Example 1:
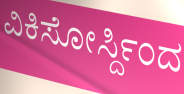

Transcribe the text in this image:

ವಿಕಿಸೋರ್ಸ್ದಿಂದ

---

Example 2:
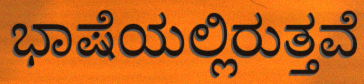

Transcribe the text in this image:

ಭಾಷೆಯಲ್ಲಿರುತ್ತವೆ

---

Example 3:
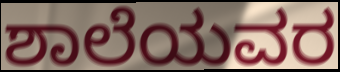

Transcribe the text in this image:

ಶಾಲೆಯವರ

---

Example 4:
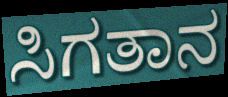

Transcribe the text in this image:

ಸಿಗತಾನ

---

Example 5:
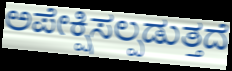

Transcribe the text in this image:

ಅಪೇಕ್ಷಿಸಲ್ಪಡುತ್ತದೆ